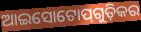
ଆଇସୋଟୋପ୍‌ଗୁଡ଼ିକର